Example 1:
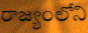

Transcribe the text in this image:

రాజ్యంలోని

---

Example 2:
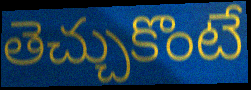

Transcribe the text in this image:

తెచ్చుకొంటే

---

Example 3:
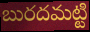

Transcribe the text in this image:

బురదమట్టి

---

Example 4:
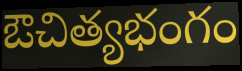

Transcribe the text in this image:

ఔచిత్యభంగం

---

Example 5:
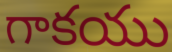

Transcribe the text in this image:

గాకయు